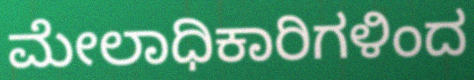
ಮೇಲಾಧಿಕಾರಿಗಳಿಂದ